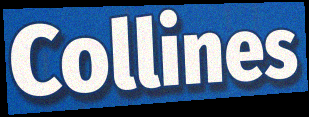
Collines